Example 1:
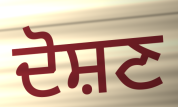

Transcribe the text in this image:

ਦੋਸ਼ਣ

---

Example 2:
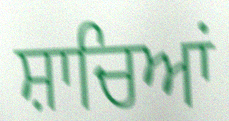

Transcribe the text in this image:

ਸ਼ਾਚਿਆਂ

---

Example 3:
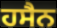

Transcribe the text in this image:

ਹਸੈਨ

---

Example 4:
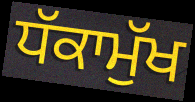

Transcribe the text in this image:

ਧੱਕਾਮੁੱਖ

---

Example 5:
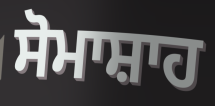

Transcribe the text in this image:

ਸੋਮਾਸ਼ਾਹ